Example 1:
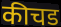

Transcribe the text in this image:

कीचड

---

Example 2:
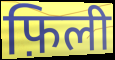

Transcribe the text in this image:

फ़िली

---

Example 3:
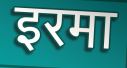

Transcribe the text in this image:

इरमा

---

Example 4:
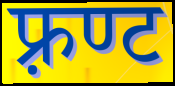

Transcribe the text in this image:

फ़्रण्ट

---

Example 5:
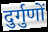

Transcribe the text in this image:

दुर्गुणों